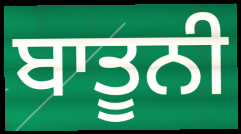
ਬਾਤੂਨੀ